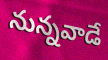
నున్నవాడే